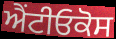
ਐਂਟੀਓਕੋਸ